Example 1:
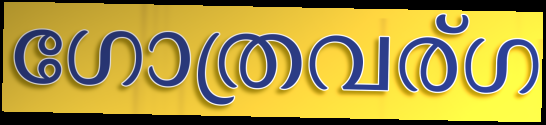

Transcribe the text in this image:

ഗോത്രവര്ഗ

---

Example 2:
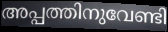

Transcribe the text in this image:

അപ്പത്തിനുവേണ്ടി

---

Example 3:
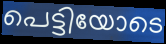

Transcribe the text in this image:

പെട്ടിയോടെ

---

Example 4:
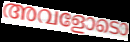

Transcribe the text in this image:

അവളോടൊ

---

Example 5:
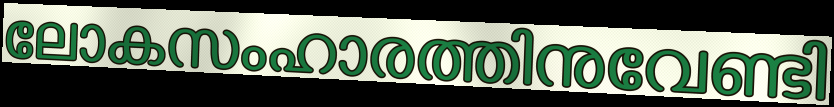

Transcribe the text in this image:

ലോകസംഹാരത്തിനുവേണ്ടി